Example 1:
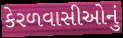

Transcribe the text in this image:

કેરળવાસીઓનું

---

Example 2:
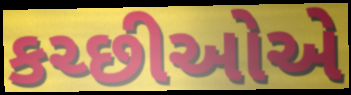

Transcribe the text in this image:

કચ્છીઓએ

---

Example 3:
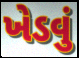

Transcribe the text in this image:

ખેડવું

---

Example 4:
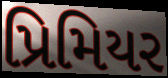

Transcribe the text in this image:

પ્રિમિયર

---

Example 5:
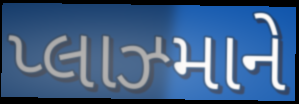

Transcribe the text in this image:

પ્લાઝ્માને